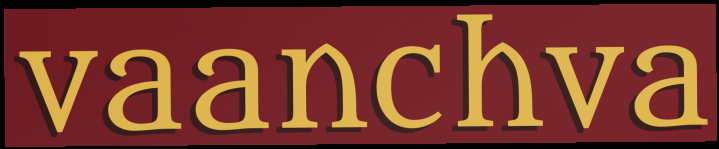
vaanchva